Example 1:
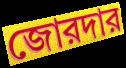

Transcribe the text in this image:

জোরদার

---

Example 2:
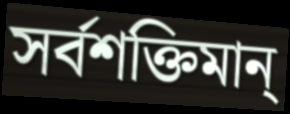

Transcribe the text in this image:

সর্বশক্তিমান্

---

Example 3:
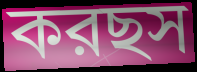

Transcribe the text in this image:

করছস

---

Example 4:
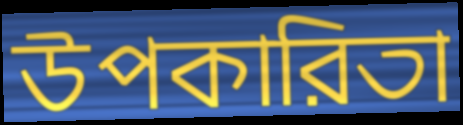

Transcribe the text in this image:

উপকারিতা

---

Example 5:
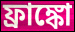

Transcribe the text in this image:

ফ্রাঙ্কো